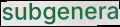
subgenera